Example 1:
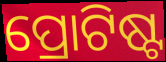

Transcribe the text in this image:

ପ୍ରୋଟିଷ୍ଟ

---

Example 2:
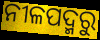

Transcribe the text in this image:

ନୀଳପଦ୍ମରୁ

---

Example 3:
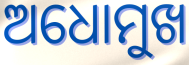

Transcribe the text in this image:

ଅଧୋମୁଖ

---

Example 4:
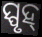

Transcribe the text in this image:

ସ୍ପୃହ୍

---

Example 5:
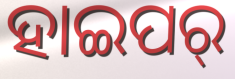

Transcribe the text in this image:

ହାଇପର୍